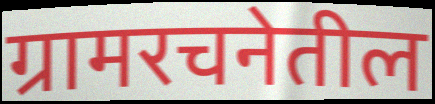
ग्रामरचनेतील